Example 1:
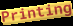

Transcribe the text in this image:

Printing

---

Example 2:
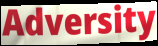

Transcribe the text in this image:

Adversity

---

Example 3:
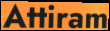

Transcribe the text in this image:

Attiram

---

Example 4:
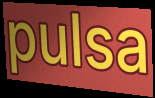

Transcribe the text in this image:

pulsa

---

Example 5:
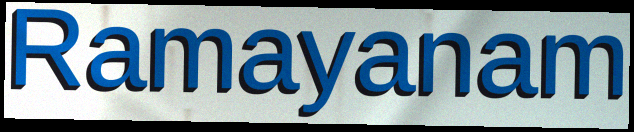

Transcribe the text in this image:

Ramayanam